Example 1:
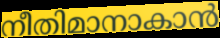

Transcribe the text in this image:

നീതിമാനാകാൻ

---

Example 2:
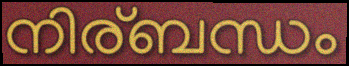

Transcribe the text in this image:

നിര്ബന്ധം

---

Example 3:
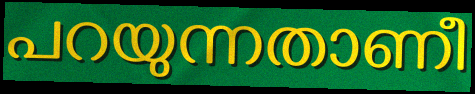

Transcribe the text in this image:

പറയുന്നതാണീ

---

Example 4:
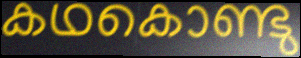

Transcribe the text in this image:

കഥകൊണ്ടു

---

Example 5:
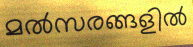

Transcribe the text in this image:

മൽസരങ്ങളിൽ